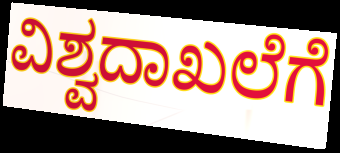
ವಿಶ್ವದಾಖಲೆಗೆ